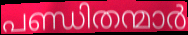
പണ്ഡിതന്മാർ